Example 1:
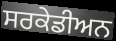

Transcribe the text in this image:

ਸਰਕੇਡੀਅਨ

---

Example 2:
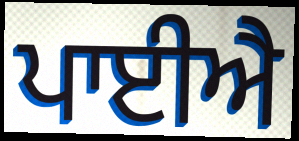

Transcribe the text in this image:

ਪਾਈਐ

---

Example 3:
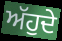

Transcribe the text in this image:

ਅੱਹੁਦੇ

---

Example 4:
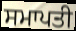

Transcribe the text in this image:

ਸਮਾਪਤੀ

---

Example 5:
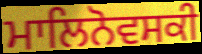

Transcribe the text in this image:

ਮਾਲਿਨੋਵਸਕੀ